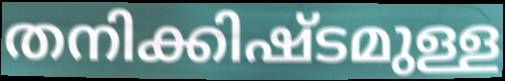
തനിക്കിഷ്ടമുള്ള